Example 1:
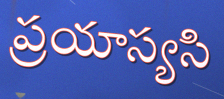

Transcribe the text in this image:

ప్రయాస్యసి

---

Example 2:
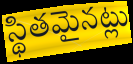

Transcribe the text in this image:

స్థితమైనట్లు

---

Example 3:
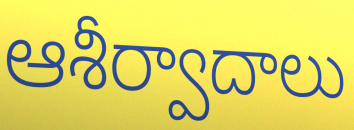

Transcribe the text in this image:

ఆశీర్వాదాలు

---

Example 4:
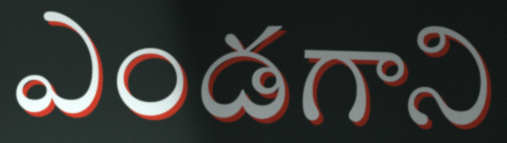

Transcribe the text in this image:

ఎండగాని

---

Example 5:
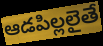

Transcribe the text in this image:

ఆడపిల్లలైతే